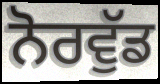
ਨੋਰਵੁੱਡ